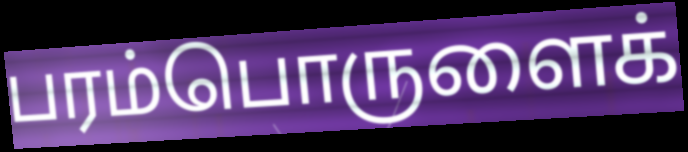
பரம்பொருளைக்